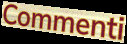
Commenti